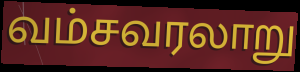
வம்சவரலாறு